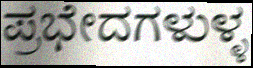
ಪ್ರಭೇದಗಳುಳ್ಳ